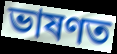
ভাষণত